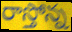
రాస్తోన్న